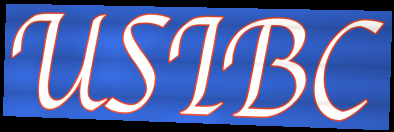
USIBC